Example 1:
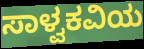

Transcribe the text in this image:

ಸಾಳ್ವಕವಿಯ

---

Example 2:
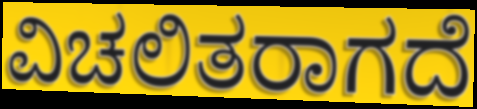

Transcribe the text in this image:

ವಿಚಲಿತರಾಗದೆ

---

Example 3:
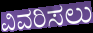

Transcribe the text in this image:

ವಿವರಿಸಲು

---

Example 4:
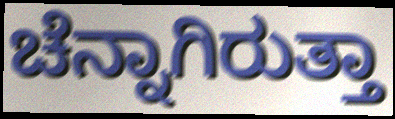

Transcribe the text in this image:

ಚೆನ್ನಾಗಿರುತ್ತಾ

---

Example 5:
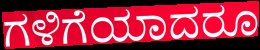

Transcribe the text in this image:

ಗಳಿಗೆಯಾದರೂ